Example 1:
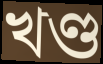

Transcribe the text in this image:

খণ্ড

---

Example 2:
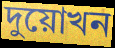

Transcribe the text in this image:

দুয়োখন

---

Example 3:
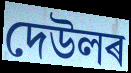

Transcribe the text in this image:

দেউলৰ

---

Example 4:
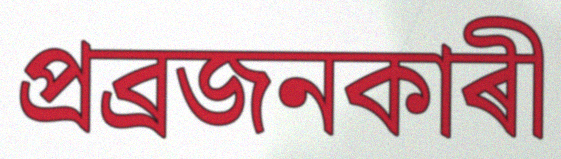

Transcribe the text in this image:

প্ৰব্ৰজনকাৰী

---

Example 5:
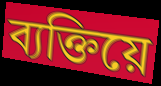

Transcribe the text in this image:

ব্যক্তিয়ে